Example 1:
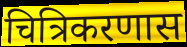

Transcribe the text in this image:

चित्रिकरणास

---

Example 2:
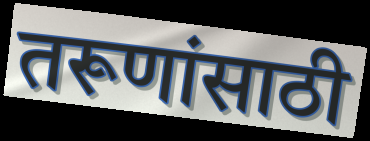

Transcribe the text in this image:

तरूणांसाठी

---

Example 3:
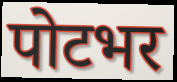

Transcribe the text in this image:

पोटभर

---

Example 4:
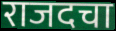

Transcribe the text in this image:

राजदचा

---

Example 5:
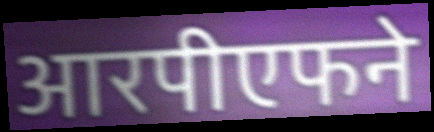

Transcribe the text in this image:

आरपीएफने